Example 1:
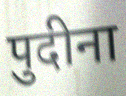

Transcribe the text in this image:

पुदीना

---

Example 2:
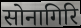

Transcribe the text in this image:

सोनागिरि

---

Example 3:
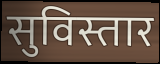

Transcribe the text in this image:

सुविस्तार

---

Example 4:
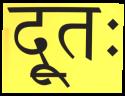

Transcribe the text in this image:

दू॒तः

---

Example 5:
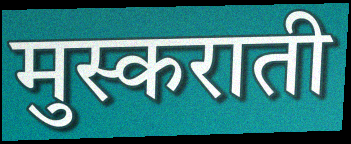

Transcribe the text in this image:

मुस्कराती